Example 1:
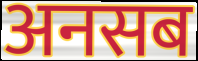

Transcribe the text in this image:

अनसब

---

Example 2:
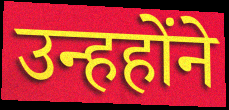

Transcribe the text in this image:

उन्हहोंने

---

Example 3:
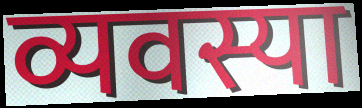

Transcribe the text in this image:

व्यवस्या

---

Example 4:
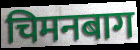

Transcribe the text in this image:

चिमनबाग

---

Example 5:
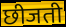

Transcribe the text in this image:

छीजती